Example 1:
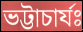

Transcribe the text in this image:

ভট্টাচাৰ্যঃ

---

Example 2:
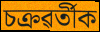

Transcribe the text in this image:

চক্ৰৱৰ্তীক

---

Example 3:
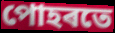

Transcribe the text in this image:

পোহৰতে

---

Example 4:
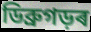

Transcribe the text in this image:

ডিব্ৰুগড়ৰ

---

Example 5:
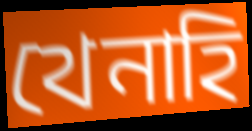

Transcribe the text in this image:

থেনাহি